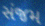
સંજમ